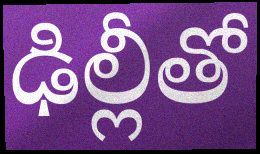
ఢిల్లీతో